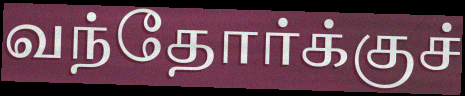
வந்தோர்க்குச்